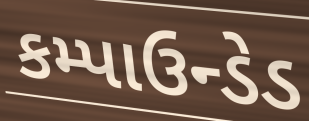
કમ્પાઉન્ડેડ